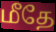
மீதே